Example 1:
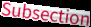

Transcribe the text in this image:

Subsection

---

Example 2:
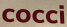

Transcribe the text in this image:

cocci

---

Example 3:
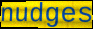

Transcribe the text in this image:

nudges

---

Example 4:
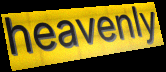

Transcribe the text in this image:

heavenly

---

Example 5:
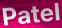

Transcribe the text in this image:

Patel